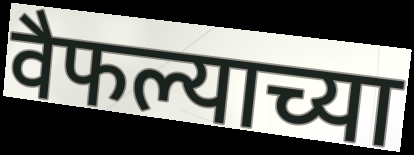
वैफल्याच्या